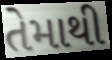
તેમાથી